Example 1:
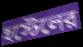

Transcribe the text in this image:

হস্টেলের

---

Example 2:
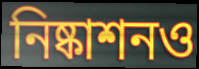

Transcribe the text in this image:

নিষ্কাশনও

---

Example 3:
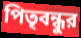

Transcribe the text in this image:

পিতৃবন্ধুর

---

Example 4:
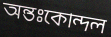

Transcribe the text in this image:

অন্তঃকোন্দল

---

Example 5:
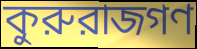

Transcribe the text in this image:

কুরুরাজগণ